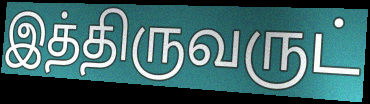
இத்திருவருட்